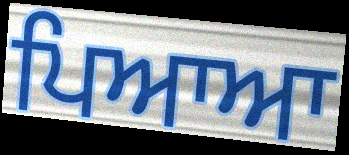
ਪਿਆਆ